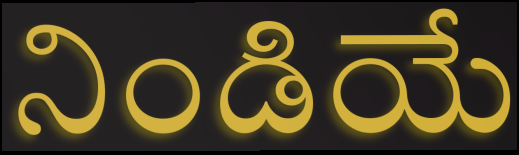
నిండియే